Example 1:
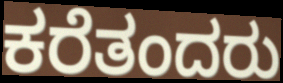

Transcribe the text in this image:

ಕರೆತಂದರು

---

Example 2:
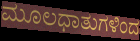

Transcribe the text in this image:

ಮೂಲಧಾತುಗಳಿಂದ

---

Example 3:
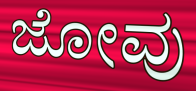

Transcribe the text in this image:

ಜೋವು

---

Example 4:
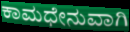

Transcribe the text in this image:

ಕಾಮಧೇನುವಾಗಿ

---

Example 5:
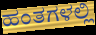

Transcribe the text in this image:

ಹಂತಗಳಲ್ಲಿ